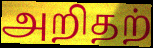
அறிதற்